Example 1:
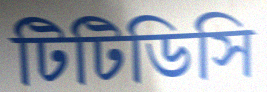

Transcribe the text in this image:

টিটিডিসি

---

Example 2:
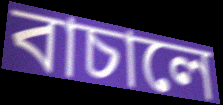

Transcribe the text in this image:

বাচালে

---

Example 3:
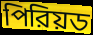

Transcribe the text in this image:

পিরিয়ড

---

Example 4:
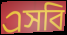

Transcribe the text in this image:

এসবি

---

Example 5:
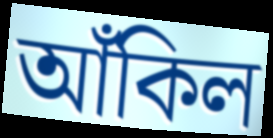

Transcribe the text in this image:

আঁকিল